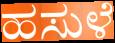
ಹಸುಳೆ